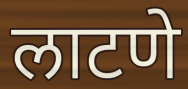
लाटणे